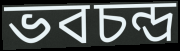
ভবচন্দ্র